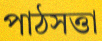
পাঠসত্তা